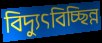
বিদ্যুৎবিচ্ছিন্ন